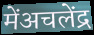
मेंअचलेंद्र